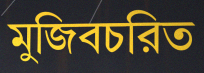
মুজিবচরিত